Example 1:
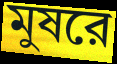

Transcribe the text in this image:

মুষরে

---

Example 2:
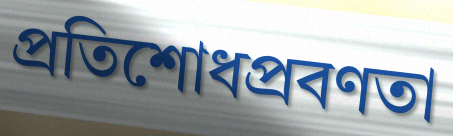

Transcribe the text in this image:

প্রতিশোধপ্রবণতা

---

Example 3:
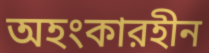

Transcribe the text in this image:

অহংকারহীন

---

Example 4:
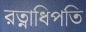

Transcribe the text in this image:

রত্নাধিপতি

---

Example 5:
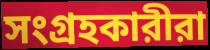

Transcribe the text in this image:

সংগ্রহকারীরা